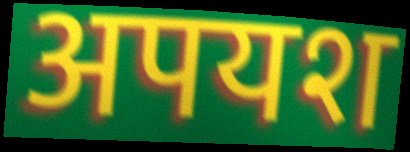
अपयश